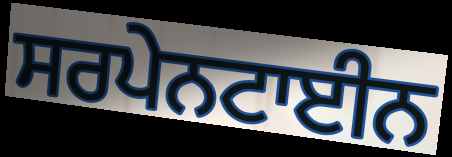
ਸਰਪੇਨਟਾਈਨ